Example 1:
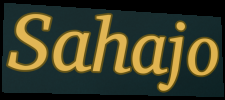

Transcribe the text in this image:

Sahajo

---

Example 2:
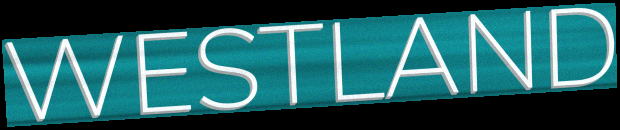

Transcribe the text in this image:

WESTLAND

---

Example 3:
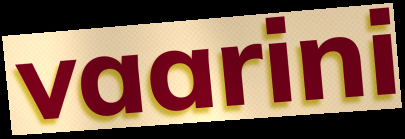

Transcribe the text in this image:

vaarini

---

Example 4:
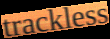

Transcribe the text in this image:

trackless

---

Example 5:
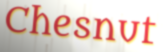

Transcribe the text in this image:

Chesnut